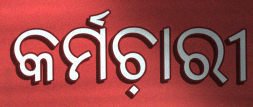
କର୍ମଚ଼ାରୀ